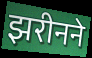
झरीनने